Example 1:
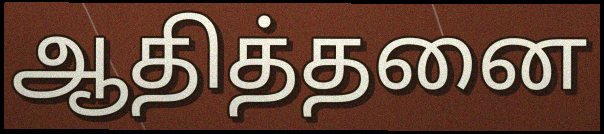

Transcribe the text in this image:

ஆதித்தனை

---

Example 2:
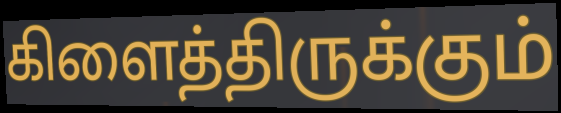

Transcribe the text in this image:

கிளைத்திருக்கும்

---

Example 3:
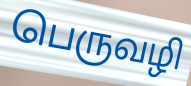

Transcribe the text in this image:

பெருவழி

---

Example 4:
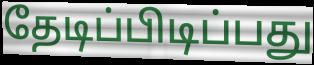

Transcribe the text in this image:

தேடிப்பிடிப்பது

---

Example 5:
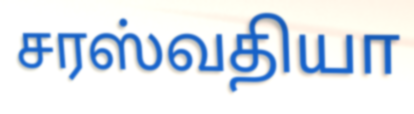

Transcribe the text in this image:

சரஸ்வதியா